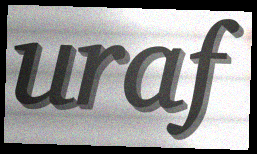
uraf